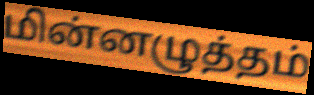
மின்னழுத்தம்